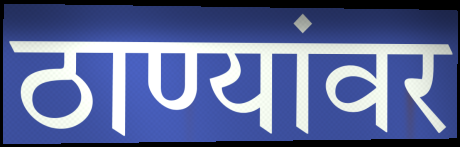
ठाण्यांवर